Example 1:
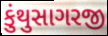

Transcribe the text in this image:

કુંથુસાગરજી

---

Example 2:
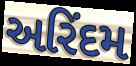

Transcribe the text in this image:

અરિંદમ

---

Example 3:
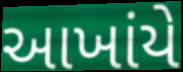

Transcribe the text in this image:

આખાંયે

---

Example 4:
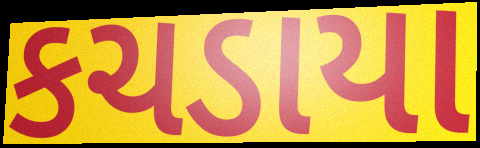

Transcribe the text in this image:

કચડાયા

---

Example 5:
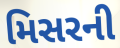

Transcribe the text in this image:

મિસરની